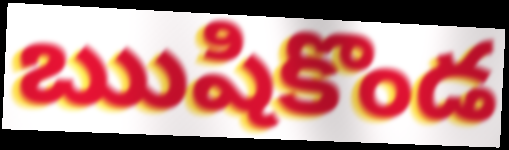
ఋషికొండ